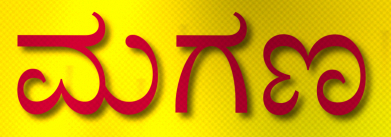
ಮಗಣ